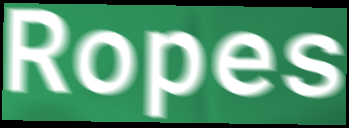
Ropes